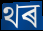
থৰ